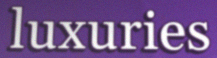
luxuries